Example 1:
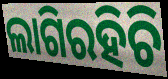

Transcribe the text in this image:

ଲାଗିରହିଚି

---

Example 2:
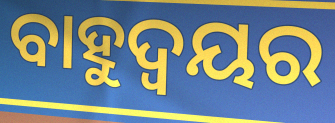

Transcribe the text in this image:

ବାହୁଦ୍ୱୟର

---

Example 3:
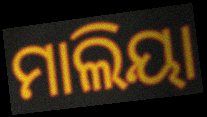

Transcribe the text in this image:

ମାଲିୟା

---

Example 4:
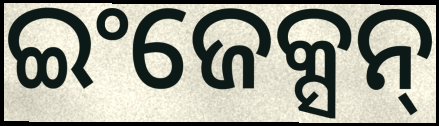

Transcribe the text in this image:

ଇଂଜେକ୍ସନ୍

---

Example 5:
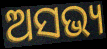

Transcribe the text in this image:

ଅସଭ୍ୟ